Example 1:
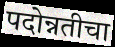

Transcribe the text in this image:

पदोन्नतीचा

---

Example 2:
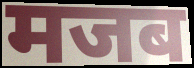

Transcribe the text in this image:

मजब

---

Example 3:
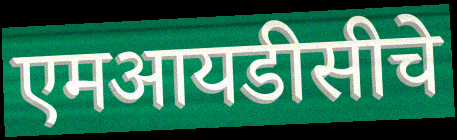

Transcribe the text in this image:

एमआयडीसीचे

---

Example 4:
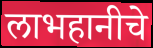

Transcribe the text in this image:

लाभहानीचे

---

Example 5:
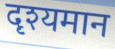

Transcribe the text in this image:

दृश्यमान